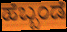
ಹೆಬ್ಬಂಡೆ